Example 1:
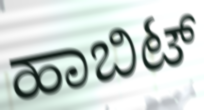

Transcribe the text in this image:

ಹಾಬಿಟ್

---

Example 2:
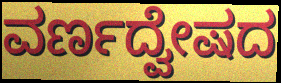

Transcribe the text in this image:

ವರ್ಣದ್ವೇಷದ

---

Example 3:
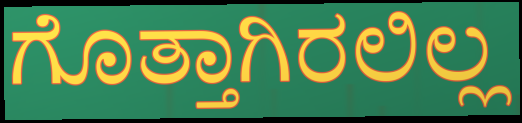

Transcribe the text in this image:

ಗೊತ್ತಾಗಿರಲಿಲ್ಲ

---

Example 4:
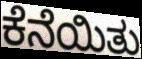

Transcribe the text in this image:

ಕೆನೆಯಿತು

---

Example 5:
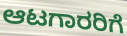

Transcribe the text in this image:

ಆಟಗಾರರಿಗೆ